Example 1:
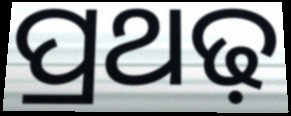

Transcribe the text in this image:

ପ୍ରଥଢ଼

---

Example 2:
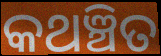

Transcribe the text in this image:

କଥଞ୍ଚିତ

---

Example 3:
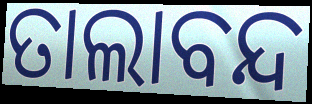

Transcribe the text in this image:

ତାଲାବନ୍ଦ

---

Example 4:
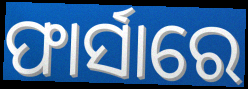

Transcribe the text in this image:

ଫାର୍ସାରେ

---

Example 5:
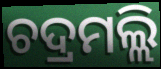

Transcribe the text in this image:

ଚଦ୍ରମଲ୍ଲି